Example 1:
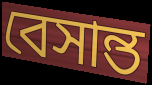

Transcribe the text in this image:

বেসান্ত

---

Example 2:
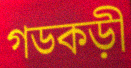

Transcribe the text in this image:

গডকড়ী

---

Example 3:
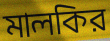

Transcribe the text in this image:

মালকির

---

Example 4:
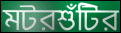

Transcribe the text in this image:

মটরশুঁটির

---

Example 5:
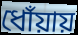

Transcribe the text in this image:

ধোঁয়ায়